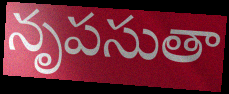
నృపసుతా